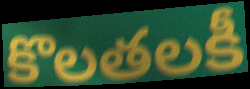
కొలతలకీ